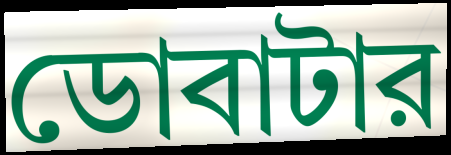
ডোবাটার